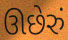
ઊછેરું